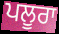
ਪਲੂਰਾ